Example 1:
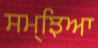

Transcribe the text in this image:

ਸਮ੍ਝਿਆ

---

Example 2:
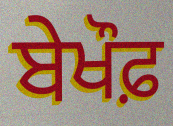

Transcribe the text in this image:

ਬੇਖੌਫ਼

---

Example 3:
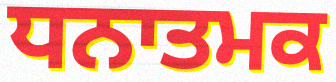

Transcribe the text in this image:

ਧਨਾਤਮਕ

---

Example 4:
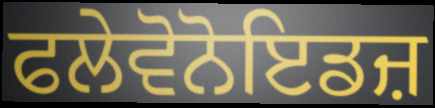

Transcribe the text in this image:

ਫਲੇਵੋਨੋਇਡਜ਼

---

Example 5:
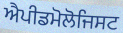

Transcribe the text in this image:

ਐਪੀਡਮੋਲੋਜਿਸਟ